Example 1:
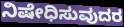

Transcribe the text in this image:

ನಿಷೇಧಿಸುವುದರ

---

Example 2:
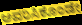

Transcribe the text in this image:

ಆವರಿಸಿಕೊಂಡೇ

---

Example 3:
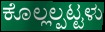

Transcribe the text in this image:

ಕೊಲ್ಲಲ್ಪಟ್ಟಳು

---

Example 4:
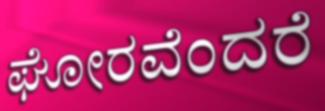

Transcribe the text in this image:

ಘೋರವೆಂದರೆ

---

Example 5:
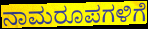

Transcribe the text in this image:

ನಾಮರೂಪಗಳಿಗೆ